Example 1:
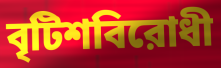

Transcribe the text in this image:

বৃটিশবিরোধী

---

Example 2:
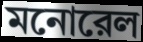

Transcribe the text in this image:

মনোরেল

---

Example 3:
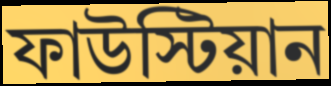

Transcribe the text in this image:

ফাউস্টিয়ান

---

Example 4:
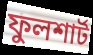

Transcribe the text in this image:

ফুলশার্ট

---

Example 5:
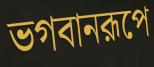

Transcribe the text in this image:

ভগবানরূপে